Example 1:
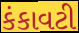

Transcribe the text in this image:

કંકાવટી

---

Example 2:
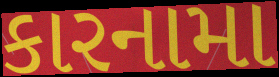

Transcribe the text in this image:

કારનામા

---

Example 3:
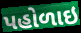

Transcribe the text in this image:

પહોળાઇ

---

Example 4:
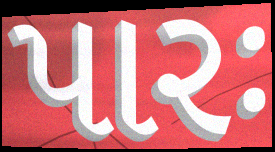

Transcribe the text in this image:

પારઃ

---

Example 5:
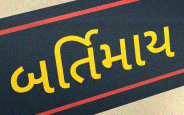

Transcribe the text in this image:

બર્તિમાય